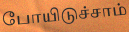
போயிடுச்சாம்